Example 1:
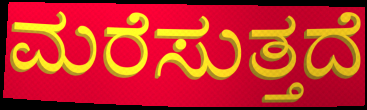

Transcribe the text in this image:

ಮರೆಸುತ್ತದೆ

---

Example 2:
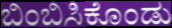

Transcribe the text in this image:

ಬಿಂಬಿಸಿಕೊಂಡು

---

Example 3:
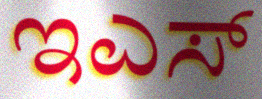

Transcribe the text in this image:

ಇಎಸ್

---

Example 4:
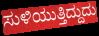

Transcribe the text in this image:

ಸುಳಿಯುತ್ತಿದ್ದುದು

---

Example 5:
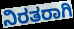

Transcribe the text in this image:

ನಿರತರಾಗಿ